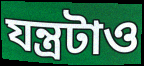
যন্ত্রটাও